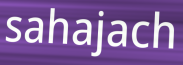
sahajach